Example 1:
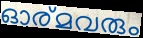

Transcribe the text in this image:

ഓര്മവരും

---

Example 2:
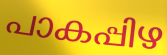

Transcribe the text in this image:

പാകപ്പിഴ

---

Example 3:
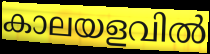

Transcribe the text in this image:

കാലയളവിൽ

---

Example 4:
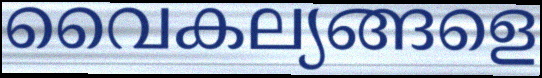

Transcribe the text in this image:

വൈകല്യങ്ങളെ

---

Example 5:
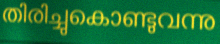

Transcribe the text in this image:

തിരിച്ചുകൊണ്ടുവന്നു